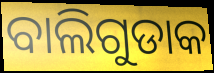
ବାଲିଗୁଡାକ